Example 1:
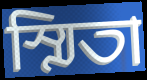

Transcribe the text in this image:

স্মিতা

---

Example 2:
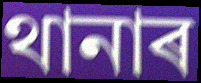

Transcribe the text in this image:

থানাৰ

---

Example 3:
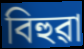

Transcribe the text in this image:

বিহুৱা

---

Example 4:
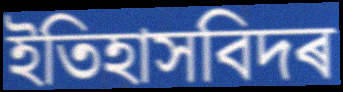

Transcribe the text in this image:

ইতিহাসবিদৰ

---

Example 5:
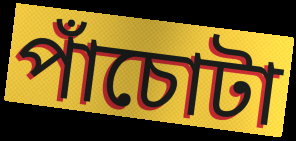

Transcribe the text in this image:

পাঁচোটা